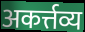
अकर्त्तव्य